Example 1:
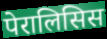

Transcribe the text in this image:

पेरालिसिस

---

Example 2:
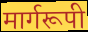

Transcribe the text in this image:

मार्गरूपी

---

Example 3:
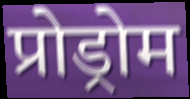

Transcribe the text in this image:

प्रोड्रोम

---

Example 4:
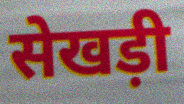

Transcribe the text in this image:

सेखड़ी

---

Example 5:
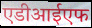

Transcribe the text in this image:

एडीआईएफ